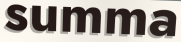
summa